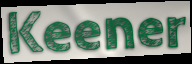
Keener